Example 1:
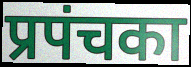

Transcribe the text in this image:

प्रपंचका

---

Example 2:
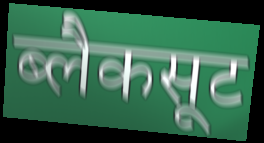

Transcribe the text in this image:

ब्लैकसूट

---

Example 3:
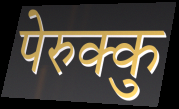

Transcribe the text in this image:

पेरुक्कु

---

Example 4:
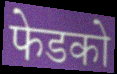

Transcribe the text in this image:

फेडको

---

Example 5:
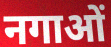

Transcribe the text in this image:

नगाओं